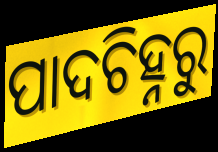
ପାଦଚିହ୍ନରୁ